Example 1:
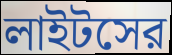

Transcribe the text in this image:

লাইটসের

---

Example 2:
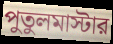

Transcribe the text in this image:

পুতুলমাস্টার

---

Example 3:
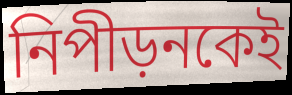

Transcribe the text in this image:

নিপীড়নকেই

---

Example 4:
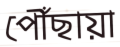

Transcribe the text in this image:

পৌঁছায়া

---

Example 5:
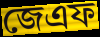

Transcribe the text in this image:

জেএফ